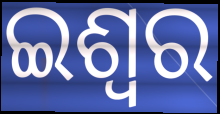
ଇଶ୍ଵର